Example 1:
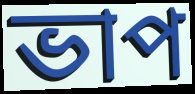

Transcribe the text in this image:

ভাপ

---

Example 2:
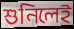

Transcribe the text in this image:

শুনিলেই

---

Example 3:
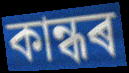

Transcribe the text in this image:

কান্ধৰ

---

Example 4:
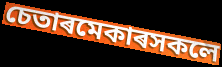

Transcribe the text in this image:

চেতাৰমেকাৰসকলে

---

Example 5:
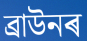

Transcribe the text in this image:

ব্ৰাউনৰ